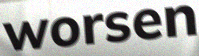
worsen